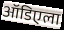
ऑडिएला